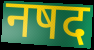
नषद